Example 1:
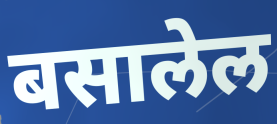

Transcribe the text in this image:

बसालेल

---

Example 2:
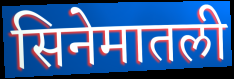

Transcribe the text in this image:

सिनेमातली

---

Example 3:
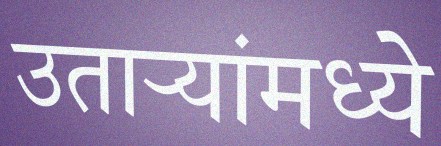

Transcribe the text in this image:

उतार्‍यांमध्ये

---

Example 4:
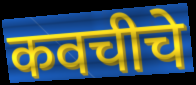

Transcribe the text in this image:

कवचीचे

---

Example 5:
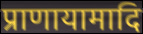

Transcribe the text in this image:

प्राणायामादि